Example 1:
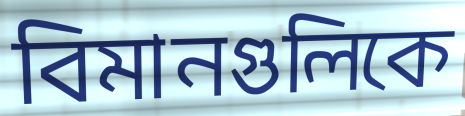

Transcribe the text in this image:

বিমানগুলিকে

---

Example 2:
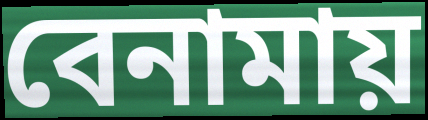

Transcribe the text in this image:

বেনামায়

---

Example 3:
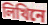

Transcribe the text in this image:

লিখিনে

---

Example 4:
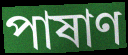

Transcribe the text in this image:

পাষাণ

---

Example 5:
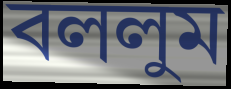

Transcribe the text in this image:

বললুম